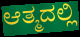
ಆತ್ಮದಲ್ಲಿ